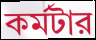
কর্মটার